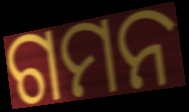
ଗମନ